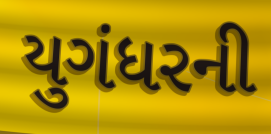
યુગંધરની